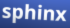
sphinx